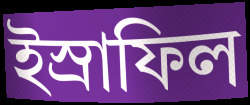
ইস্রাফিল